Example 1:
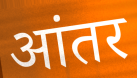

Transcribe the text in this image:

आंतर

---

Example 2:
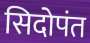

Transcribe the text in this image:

सिदोपंत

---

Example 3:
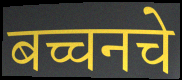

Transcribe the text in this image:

बच्चनचे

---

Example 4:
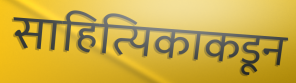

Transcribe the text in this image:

साहित्यिकाकडून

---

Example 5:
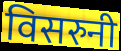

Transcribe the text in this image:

विसरुनी